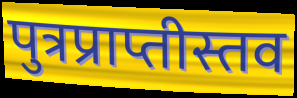
पुत्रप्राप्तीस्तव